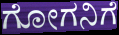
ಗೋಗನಿಗೆ